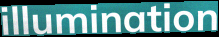
illumination